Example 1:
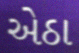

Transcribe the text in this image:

એઠા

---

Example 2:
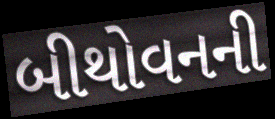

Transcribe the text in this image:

બીથોવનની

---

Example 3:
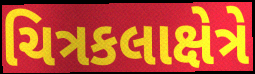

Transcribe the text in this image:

ચિત્રકલાક્ષેત્રે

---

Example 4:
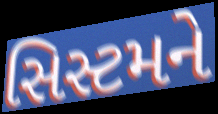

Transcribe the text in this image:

સિસ્ટમને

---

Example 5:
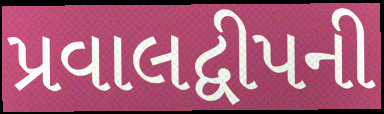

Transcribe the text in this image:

પ્રવાલદ્વીપની